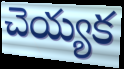
చెయ్యక